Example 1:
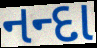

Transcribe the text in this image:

નન્દા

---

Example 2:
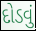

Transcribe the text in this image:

દોડવું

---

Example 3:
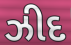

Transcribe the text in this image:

ઝીદ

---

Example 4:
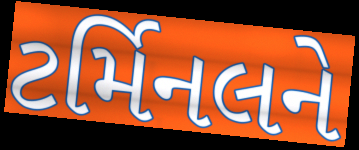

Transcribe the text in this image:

ટર્મિનલને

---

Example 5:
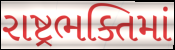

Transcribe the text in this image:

રાષ્ટ્રભક્તિમાં